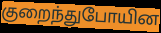
குறைந்துபோயின